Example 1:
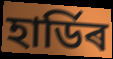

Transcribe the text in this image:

হাৰ্ডিৰ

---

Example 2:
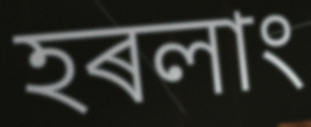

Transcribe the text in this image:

হৰলাং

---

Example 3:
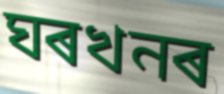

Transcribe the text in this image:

ঘৰখনৰ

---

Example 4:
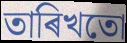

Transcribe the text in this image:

তাৰিখতো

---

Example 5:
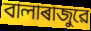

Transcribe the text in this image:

বালাৰাজুৱে